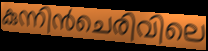
കുന്നിൻചെരിവിലെ